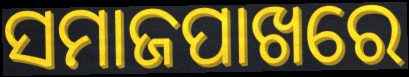
ସମାଜପାଖରେ